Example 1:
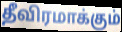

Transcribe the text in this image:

தீவிரமாக்கும்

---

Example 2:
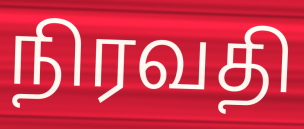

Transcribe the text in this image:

நிரவதி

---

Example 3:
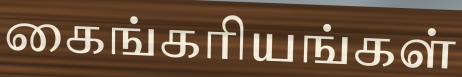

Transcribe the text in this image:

கைங்கரியங்கள்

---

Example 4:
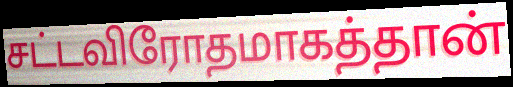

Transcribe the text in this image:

சட்டவிரோதமாகத்தான்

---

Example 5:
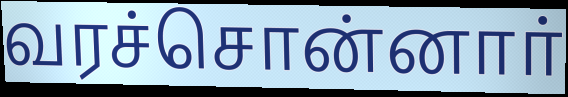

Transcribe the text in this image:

வரச்சொன்னார்